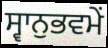
ਸ੍ਵਾਨੁਭਵਮੇਂ